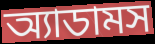
অ্যাডামস